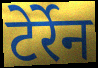
टेर्रेन